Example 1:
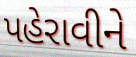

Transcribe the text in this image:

પહેરાવીને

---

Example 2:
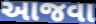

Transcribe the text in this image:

આજવા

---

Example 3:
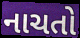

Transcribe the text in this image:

નાચતો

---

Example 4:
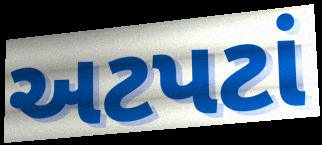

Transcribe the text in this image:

અટપટાં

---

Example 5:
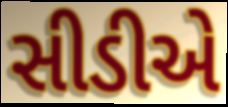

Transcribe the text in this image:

સીડીએ